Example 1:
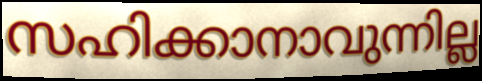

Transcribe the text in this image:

സഹിക്കാനാവുന്നില്ല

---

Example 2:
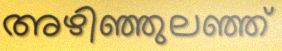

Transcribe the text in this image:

അഴിഞ്ഞുലഞ്ഞ്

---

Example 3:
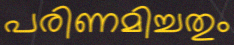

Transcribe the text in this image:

പരിണമിച്ചതും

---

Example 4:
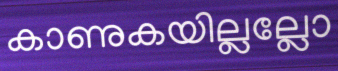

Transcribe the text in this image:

കാണുകയില്ലല്ലോ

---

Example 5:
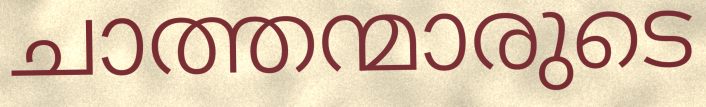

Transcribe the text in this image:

ചാത്തന്മാരുടെ